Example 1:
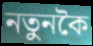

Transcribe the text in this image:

নতুনকৈ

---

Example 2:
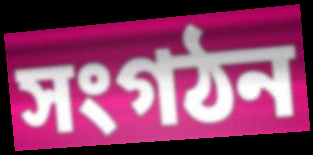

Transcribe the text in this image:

সংগঠন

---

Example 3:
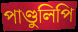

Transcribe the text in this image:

পাণ্ডুলিপি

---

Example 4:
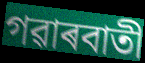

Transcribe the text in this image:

গৱাৰবাতী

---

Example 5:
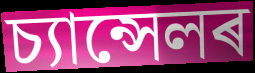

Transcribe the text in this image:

চ্যান্সেলৰ